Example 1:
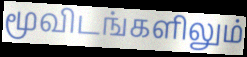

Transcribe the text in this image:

மூவிடங்களிலும்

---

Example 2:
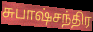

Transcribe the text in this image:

சுபாஷ்சந்திர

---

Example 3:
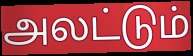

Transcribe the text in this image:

அலட்டும்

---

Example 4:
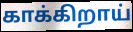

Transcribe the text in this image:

காக்கிறாய்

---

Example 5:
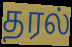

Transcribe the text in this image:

தரல்